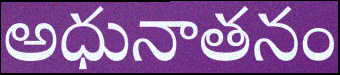
అధునాతనం